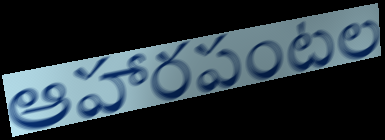
ఆహారపంటల